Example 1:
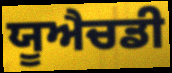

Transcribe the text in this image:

ਯੂਐਚਡੀ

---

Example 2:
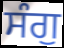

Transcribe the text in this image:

ਸੰਗੁ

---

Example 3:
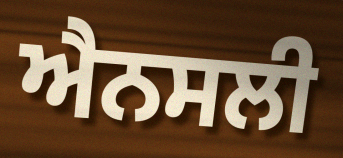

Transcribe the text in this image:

ਐਨਸਲੀ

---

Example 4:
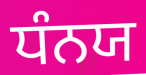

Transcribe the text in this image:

ਧੰਨਯ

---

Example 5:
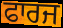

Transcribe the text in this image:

ਫਾਰਜ